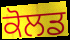
ਕੋਲਡ